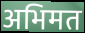
अभिमत